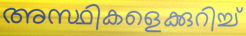
അസ്ഥികളെക്കുറിച്ച്